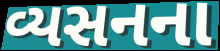
વ્યસનના